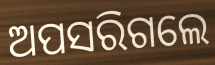
ଅପସରିଗଲେ